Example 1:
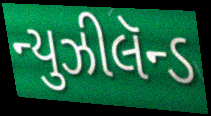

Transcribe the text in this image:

ન્યુઝીલૅન્ડ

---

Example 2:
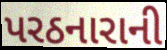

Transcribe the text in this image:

પરઠનારાની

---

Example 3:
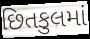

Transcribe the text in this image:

છિતકુલમાં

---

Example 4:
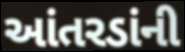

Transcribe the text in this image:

આંતરડાંની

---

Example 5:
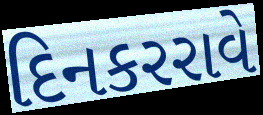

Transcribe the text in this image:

દિનકરરાવે